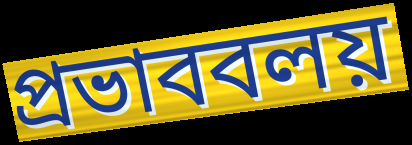
প্রভাববলয়